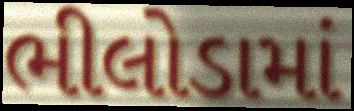
ભીલોડામાં